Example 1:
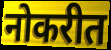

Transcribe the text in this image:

नोकरीत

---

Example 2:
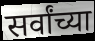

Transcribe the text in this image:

सर्वांच्या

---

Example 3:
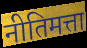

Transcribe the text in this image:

नीतिमत्ता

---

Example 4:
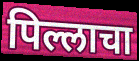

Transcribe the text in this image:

पिल्लाचा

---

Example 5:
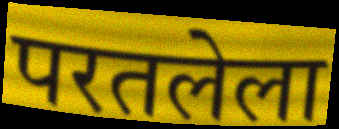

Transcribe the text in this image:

परतलेला